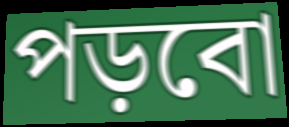
পড়বো